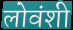
लोवंशी